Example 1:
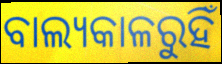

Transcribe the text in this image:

ବାଲ୍ୟକାଳରୁହିଁ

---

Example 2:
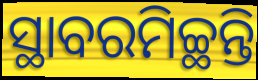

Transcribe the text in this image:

ସ୍ଥାବରମିଚ୍ଛନ୍ତି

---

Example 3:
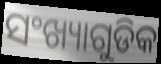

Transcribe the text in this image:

ସଂଖ୍ୟାଗୁଡିକ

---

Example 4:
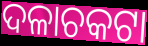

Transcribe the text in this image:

ଦଳାଚକଟା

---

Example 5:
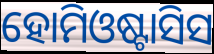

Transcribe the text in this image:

ହୋମିଓଷ୍ଟାସିସ